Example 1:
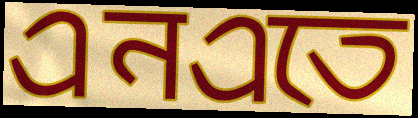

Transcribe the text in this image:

এনএতে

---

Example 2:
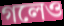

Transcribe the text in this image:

গলেও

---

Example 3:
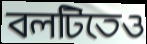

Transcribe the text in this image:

বলটিতেও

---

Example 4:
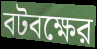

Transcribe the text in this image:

বটবক্ষের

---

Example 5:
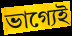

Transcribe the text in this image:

ভাগ্যেই